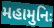
મહામુનિઃ